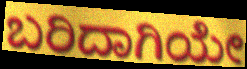
ಬರಿದಾಗಿಯೇ